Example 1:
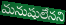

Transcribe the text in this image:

మనుషులేనని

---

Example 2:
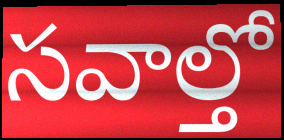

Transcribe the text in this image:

సవాల్తో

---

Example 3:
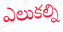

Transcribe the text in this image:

ఎలుకల్ని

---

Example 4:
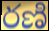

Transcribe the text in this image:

రణి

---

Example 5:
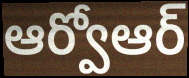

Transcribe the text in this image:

ఆర్వోఆర్